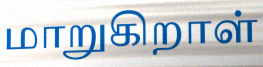
மாறுகிறாள்